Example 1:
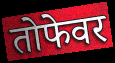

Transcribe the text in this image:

तोफेवर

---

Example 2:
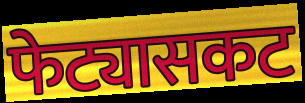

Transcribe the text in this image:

फेट्यासकट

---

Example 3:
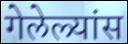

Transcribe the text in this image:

गेलेल्यांस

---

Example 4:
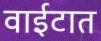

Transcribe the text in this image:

वाईटात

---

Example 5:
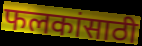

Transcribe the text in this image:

फलकांसाठी